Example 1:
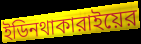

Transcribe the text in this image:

ইডিনথাকারাইয়ের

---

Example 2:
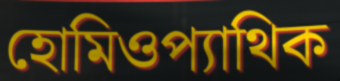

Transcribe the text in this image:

হোমিওপ্যাথিক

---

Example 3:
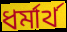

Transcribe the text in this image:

ধর্মার্থ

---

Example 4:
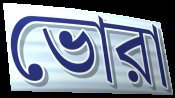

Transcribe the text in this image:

ভোরা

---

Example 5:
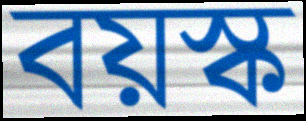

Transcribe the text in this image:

বয়স্ক